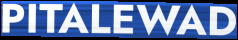
PITALEWAD